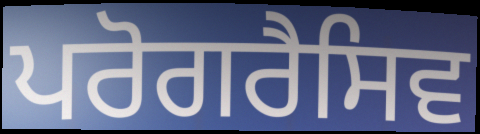
ਪਰੋਗਰੈਸਿਵ